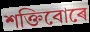
শক্তিবোৰে